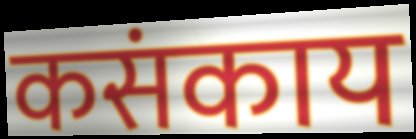
कसंकाय